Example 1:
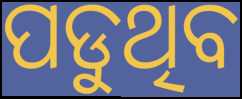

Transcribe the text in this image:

ପଡୁଥିବ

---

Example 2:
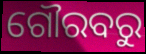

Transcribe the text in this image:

ଗୌରବରୁ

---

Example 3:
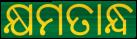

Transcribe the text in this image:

କ୍ଷମତାନ୍ଧ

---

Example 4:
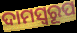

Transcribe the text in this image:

ଦାମସ୍ୱରୂପ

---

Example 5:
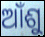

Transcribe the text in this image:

ଆଁଶୁ